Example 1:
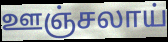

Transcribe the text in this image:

ஊஞ்சலாய்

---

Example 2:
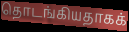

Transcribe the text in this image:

தொடங்கியதாகக்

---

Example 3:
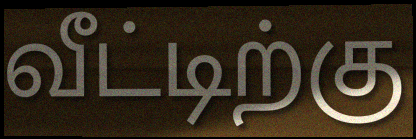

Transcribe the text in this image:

வீட்டிற்கு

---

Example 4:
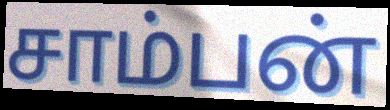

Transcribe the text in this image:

சாம்பன்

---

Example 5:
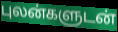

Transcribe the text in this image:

புலன்களுடன்